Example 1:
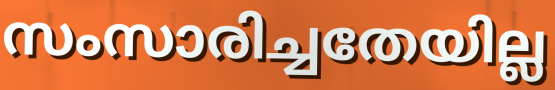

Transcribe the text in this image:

സംസാരിച്ചതേയില്ല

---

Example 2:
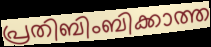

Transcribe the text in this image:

പ്രതിബിംബിക്കാത്ത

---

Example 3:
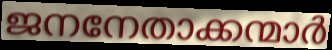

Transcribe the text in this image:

ജനനേതാക്കന്മാർ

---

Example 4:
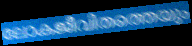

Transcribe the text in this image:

ലോകജീവിതത്തെയും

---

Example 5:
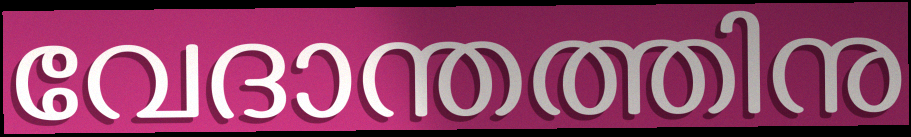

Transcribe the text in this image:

വേദാന്തത്തിനു